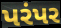
પરંપર